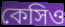
কেসিও